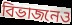
বিভাজনেও